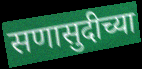
सणासुदीच्या